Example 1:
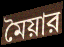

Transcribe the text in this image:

মৈয়ার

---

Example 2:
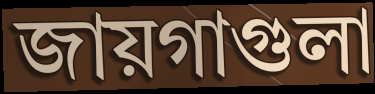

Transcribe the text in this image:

জায়গাগুলা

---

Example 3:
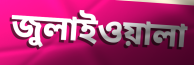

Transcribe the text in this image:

জুলাইওয়ালা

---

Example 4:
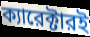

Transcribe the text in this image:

ক্যারেক্টারই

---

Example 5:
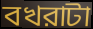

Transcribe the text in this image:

বখরাটা